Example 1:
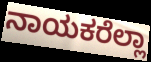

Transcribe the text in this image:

ನಾಯಕರೆಲ್ಲಾ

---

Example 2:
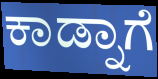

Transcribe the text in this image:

ಕಾಡ್ನಾಗೆ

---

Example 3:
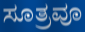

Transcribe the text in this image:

ಸೂತ್ರವೂ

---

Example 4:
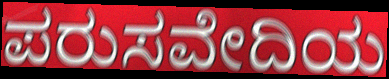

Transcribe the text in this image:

ಪರುಸವೇದಿಯ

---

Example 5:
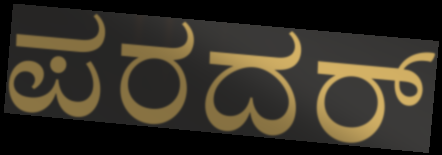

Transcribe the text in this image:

ಪರದರ್